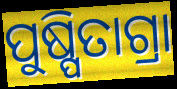
ପୁଷ୍ପିତାଗ୍ରା